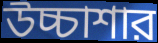
উচ্চাশার